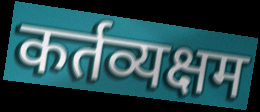
कर्तव्यक्षम